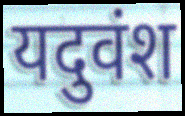
यदुवंश